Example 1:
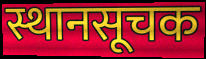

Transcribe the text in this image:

स्थानसूचक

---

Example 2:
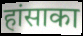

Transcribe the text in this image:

हांसाका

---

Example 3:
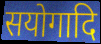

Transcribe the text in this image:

सयोगादि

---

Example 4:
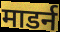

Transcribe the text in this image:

माडर्न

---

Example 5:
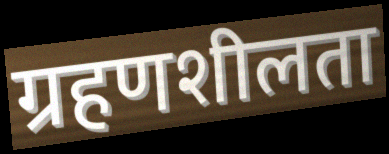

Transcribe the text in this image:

ग्रहणशीलता